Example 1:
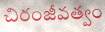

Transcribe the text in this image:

చిరంజీవత్వం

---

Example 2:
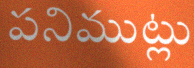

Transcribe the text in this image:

పనిముట్లు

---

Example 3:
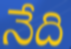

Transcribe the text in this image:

నేది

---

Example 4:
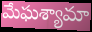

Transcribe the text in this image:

మేఘశ్యామా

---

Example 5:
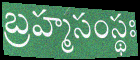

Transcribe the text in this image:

బ్రహ్మసంస్థః